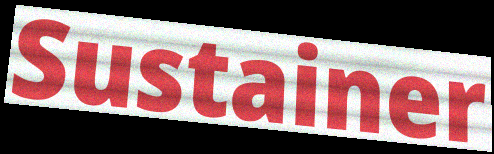
Sustainer